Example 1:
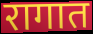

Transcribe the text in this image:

रागात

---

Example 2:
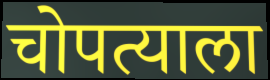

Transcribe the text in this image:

चोपत्याला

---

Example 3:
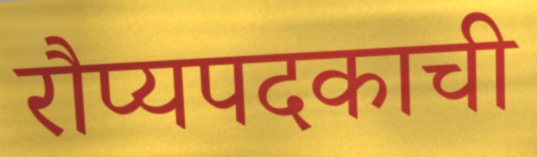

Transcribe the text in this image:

रौप्यपदकाची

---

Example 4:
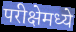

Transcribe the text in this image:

परीक्षेमध्ये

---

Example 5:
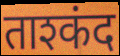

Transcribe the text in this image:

ताश्कंद